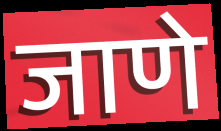
जाणे